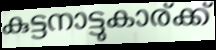
കുട്ടനാട്ടുകാര്ക്ക്